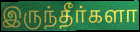
இருந்தீர்களா